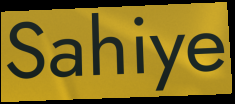
Sahiye